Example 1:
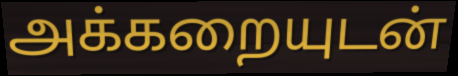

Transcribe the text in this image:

அக்கறையுடன்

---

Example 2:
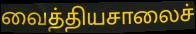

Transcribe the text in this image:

வைத்தியசாலைச்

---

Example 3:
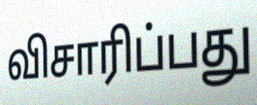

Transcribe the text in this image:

விசாரிப்பது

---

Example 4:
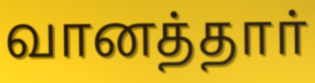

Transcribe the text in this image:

வானத்தார்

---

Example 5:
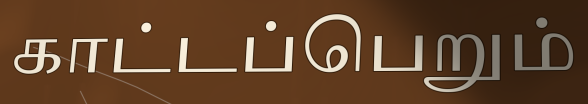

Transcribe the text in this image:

காட்டப்பெறும்